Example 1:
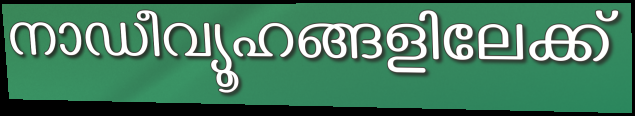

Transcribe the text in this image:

നാഡീവ്യൂഹങ്ങളിലേക്ക്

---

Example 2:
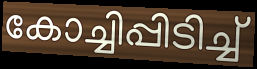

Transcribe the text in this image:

കോച്ചിപ്പിടിച്ച്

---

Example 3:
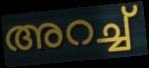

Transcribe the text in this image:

അറച്ച്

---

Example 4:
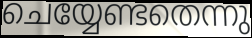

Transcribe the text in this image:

ചെയ്യേണ്ടതെന്നു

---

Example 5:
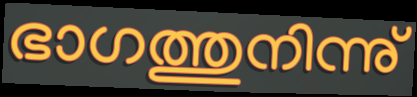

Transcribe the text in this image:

ഭാഗത്തുനിന്നു്